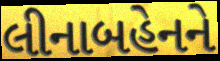
લીનાબહેનને